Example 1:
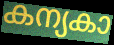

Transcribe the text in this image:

കന്യകാ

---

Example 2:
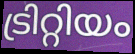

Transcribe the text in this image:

ട്രിറ്റിയം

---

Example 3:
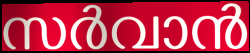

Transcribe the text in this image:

സർവാൻ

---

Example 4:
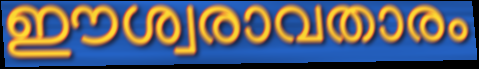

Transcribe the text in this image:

ഈശ്വരാവതാരം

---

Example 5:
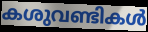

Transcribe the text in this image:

കശുവണ്ടികൾ